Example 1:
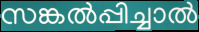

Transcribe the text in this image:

സങ്കൽപ്പിച്ചാൽ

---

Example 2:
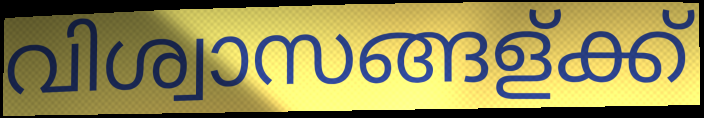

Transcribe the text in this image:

വിശ്വാസങ്ങള്ക്ക്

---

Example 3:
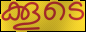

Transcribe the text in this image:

ക്കൂടെ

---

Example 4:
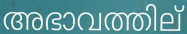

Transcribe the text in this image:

അഭാവത്തില്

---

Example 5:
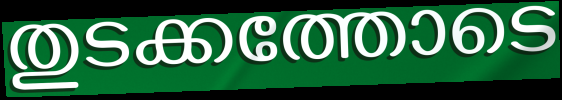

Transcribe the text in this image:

തുടക്കത്തോടെ